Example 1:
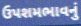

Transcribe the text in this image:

ઉપશમભાવનું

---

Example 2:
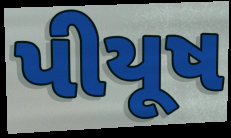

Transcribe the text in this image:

પીયૂષ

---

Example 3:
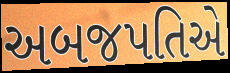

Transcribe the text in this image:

અબજપતિએ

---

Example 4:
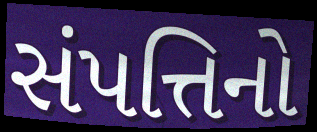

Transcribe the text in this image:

સંપત્તિનો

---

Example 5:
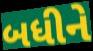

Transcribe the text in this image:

બધીને